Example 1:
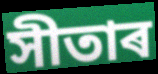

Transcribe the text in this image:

সীতাৰ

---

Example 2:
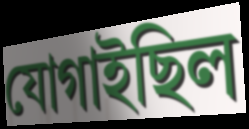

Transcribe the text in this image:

যোগাইছিল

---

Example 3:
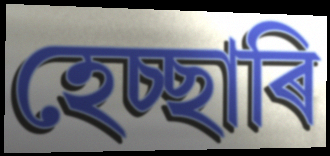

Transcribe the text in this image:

হেচ্ছাৰি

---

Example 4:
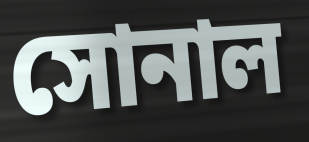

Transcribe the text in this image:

সোনাল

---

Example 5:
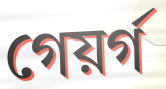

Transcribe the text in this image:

গেয়ৰ্গ